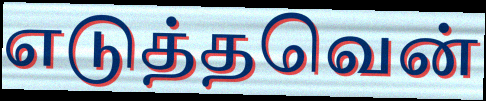
எடுத்தவென்